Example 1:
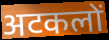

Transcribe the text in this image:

अटकलों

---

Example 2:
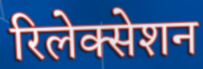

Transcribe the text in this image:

रिलेक्सेशन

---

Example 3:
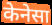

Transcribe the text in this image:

केनेसा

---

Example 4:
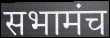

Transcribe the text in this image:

सभामंच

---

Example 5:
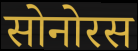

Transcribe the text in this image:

सोनोरस